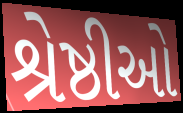
શ્રેષ્ઠીઓ